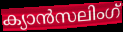
ക്യാൻസലിംഗ്